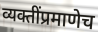
व्यक्तींप्रमाणेच